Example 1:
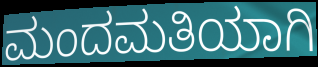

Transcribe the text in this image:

ಮಂದಮತಿಯಾಗಿ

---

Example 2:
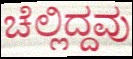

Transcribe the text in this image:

ಚೆಲ್ಲಿದ್ದವು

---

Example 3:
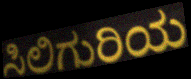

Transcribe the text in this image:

ಸಿಲಿಗುರಿಯ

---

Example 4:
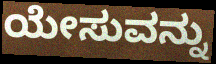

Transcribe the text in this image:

ಯೇಸುವನ್ನು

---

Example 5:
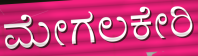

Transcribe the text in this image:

ಮೇಗಲಕೇರಿ